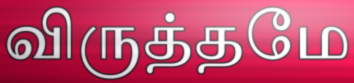
விருத்தமே